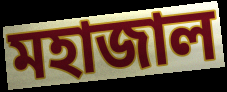
মহাজাল